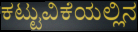
ಕಟ್ಟುವಿಕೆಯಲ್ಲಿನ